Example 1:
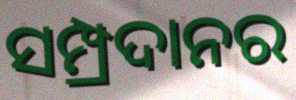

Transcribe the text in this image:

ସମ୍ପ୍ରଦାନର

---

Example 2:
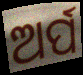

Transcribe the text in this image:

ଅର୍ପ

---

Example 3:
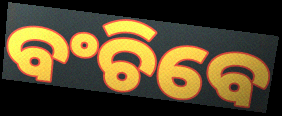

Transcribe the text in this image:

ବଂଚିବେ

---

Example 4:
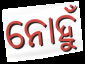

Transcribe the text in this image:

ନୋହୁଁ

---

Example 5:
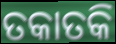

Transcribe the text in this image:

ତକାତକି